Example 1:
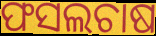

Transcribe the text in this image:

ଫସଲଚାଷ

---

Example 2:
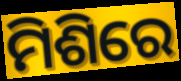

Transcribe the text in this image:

ମିଶିରେ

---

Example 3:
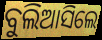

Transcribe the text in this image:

ବୁଲିଆସିଲେ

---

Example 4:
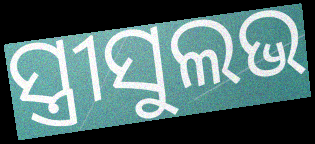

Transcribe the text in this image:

ସ୍ତ୍ରୀସୁଲଭ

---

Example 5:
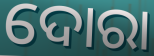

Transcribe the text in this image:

ଦୋରା